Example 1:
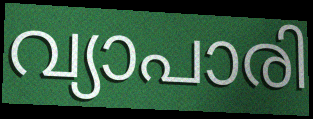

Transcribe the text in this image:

വ്യാപാരി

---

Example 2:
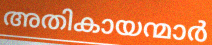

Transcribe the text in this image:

അതികായന്മാർ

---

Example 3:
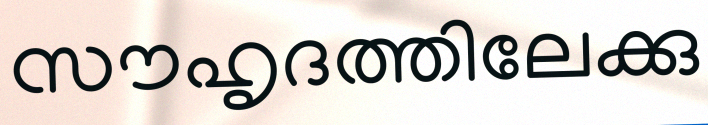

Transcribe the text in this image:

സൗഹൃദത്തിലേക്കു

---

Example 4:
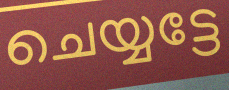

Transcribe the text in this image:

ചെയ്യട്ടേ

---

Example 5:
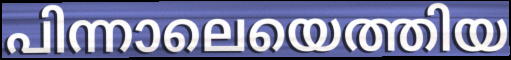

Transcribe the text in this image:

പിന്നാലെയെത്തിയ